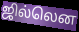
ஜில்லென